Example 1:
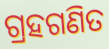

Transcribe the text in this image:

ଗ୍ରହଗଣିତ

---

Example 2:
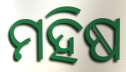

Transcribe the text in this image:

ମହିଷ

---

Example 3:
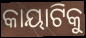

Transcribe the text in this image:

କାୟାଟିକୁ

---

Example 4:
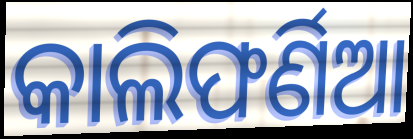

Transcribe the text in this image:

କାଲିଫର୍ଣିଆ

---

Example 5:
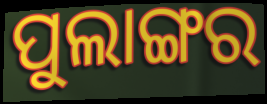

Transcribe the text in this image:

ପୁଲାଙ୍ଗର